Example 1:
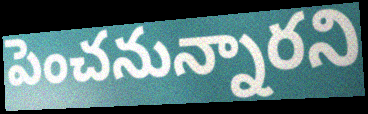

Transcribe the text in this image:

పెంచనున్నారని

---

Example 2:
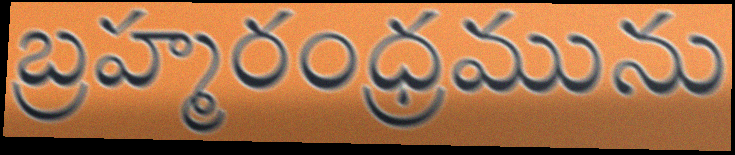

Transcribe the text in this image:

బ్రహ్మరంధ్రమును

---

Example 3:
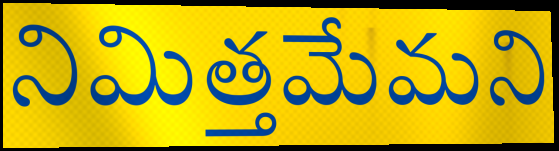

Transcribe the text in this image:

నిమిత్తమేమని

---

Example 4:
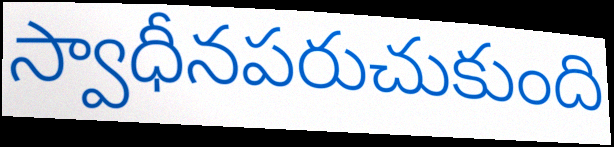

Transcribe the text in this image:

స్వాధీనపరుచుకుంది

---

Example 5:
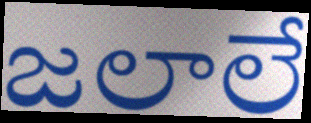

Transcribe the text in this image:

జలాలే